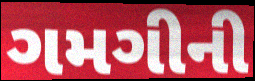
ગમગીની